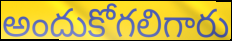
అందుకోగలిగారు